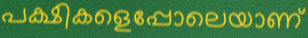
പക്ഷികളെപ്പോലെയാണ്